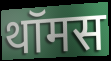
थॉमस